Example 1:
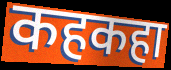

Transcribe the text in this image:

कहकहा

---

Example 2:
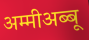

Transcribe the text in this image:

अम्मीअब्बू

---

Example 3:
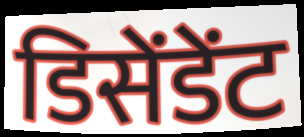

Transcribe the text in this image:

डिसेंडेंट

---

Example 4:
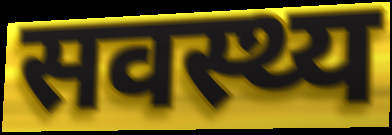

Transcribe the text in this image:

सवस्थ्य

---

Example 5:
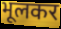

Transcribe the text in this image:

भूलकर